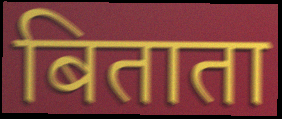
बिताता